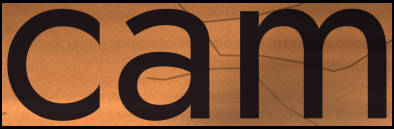
cam